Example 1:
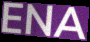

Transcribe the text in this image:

ENA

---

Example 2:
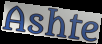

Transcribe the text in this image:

Ashte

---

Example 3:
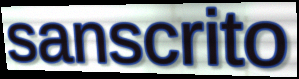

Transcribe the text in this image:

sanscrito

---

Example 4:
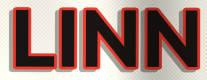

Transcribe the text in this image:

LINN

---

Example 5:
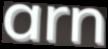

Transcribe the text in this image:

arn